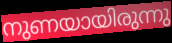
നുണയായിരുന്നു